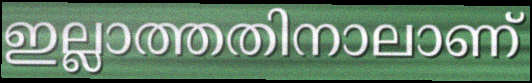
ഇല്ലാത്തതിനാലാണ്